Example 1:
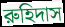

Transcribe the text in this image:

রুহিদাস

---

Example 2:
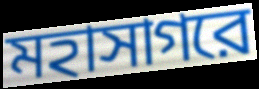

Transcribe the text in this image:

মহাসাগরে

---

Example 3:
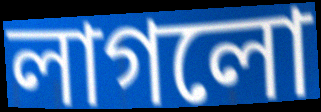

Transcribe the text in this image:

লাগলো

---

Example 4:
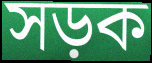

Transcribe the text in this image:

সড়ক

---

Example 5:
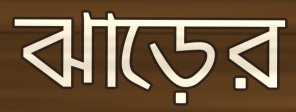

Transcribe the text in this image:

ঝাড়ের